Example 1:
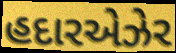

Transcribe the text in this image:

હદારએઝેર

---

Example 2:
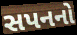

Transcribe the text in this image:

સપનનો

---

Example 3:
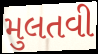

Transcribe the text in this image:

મુલતવી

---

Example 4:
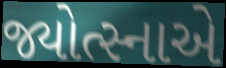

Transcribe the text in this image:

જ્યોત્સ્નાએ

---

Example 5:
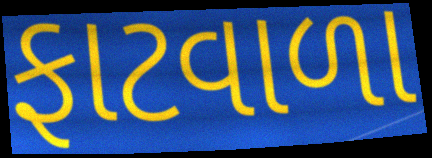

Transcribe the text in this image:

ફાટવાળા